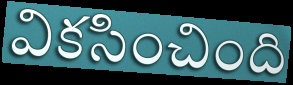
వికసించింది